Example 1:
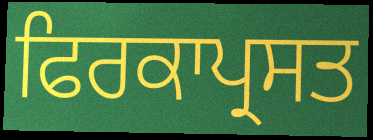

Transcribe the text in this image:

ਫਿਰਕਾਪ੍ਰਸਤ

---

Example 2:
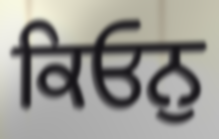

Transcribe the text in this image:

ਕਿਓਨੁ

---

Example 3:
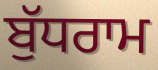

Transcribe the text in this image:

ਬੁੱਧਰਾਮ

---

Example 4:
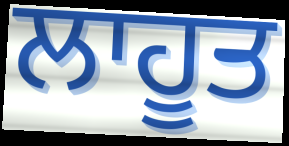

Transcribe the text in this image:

ਲਾਹੂਤ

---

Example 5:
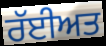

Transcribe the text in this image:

ਰੱਈਅਤ